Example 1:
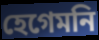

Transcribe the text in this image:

হেগেমনি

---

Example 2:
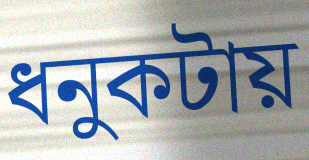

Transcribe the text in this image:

ধনুকটায়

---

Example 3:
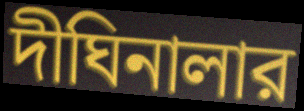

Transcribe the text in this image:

দীঘিনালার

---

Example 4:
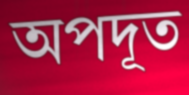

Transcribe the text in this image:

অপদূত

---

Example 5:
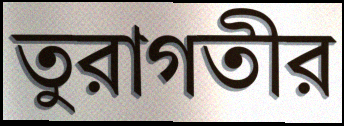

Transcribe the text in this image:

তুরাগতীর